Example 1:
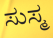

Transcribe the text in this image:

ಸುಸ್ಮ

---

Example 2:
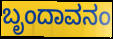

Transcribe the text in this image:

ಬೃಂದಾವನಂ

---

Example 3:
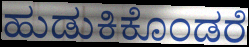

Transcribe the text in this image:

ಹುಡುಕಿಕೊಂಡರೆ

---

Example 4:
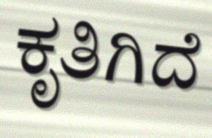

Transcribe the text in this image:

ಕೃತಿಗಿದೆ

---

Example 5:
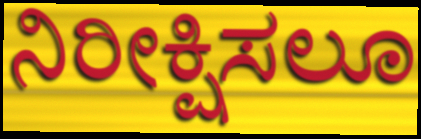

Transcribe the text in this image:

ನಿರೀಕ್ಷಿಸಲೂ